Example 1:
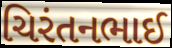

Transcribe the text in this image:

ચિરંતનભાઈ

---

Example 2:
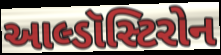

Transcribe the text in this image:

આલ્ડૉસ્ટિરોન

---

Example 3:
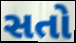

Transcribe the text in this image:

સતો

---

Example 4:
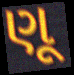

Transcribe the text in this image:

ણૂ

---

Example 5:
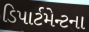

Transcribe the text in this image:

ડિપાર્ટમેન્ટના